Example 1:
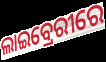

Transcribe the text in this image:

ଲାଇବ୍ରେରୀରେ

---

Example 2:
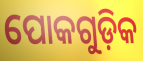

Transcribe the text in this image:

ପୋକଗୁଡ଼ିକ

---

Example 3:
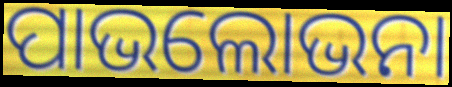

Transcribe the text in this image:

ପାଭଲୋଭନା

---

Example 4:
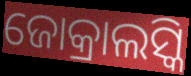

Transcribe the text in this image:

ଜୋକ୍ରାଲସ୍କି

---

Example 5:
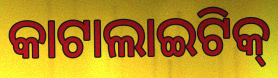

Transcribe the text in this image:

କାଟାଲାଇଟିକ୍